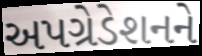
અપગ્રેડેશનને